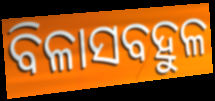
ବିଳାସବହୁଳ